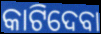
କାଟିଦେବା